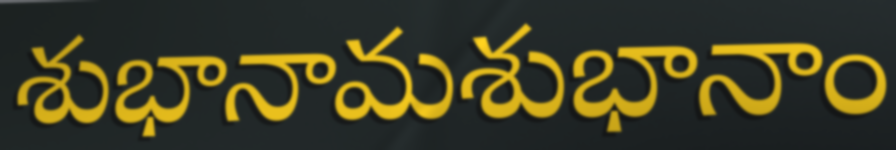
శుభానామశుభానాం